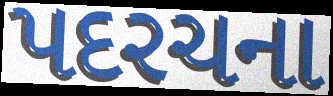
પદરચના